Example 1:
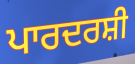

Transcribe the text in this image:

ਪਾਰਦਰਸ਼ੀ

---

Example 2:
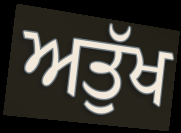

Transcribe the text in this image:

ਅਤੁੱਖ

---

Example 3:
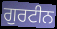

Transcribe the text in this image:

ਗੁਰਟੀਨ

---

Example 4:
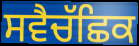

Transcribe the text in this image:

ਸਵੈਚੱਛਿਕ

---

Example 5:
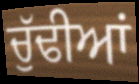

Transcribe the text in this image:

ਚੁੱਢੀਆਂ